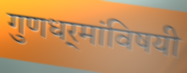
गुणधर्मांविषयी